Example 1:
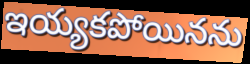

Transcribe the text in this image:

ఇయ్యకపోయినను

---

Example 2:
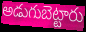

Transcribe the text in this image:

అడుగుబెట్టారు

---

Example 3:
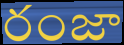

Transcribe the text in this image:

రంజా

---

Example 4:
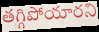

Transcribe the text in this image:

తగ్గిపోయారని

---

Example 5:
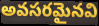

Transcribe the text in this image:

అవసరమైనవి